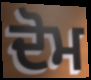
ਦੋਮ